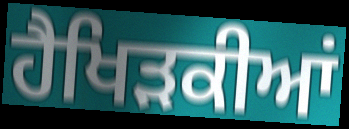
ਹੈਖਿੜਕੀਆਂ